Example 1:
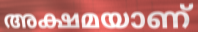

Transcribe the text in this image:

അക്ഷമയാണ്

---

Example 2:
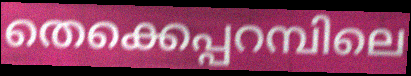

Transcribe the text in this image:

തെക്കെപ്പറമ്പിലെ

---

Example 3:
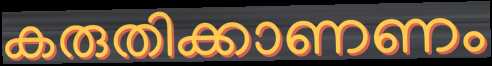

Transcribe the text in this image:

കരുതിക്കാണണം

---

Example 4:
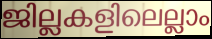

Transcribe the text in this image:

ജില്ലകളിലെല്ലാം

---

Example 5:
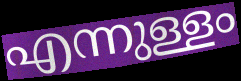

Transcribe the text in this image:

എന്നുള്ളം